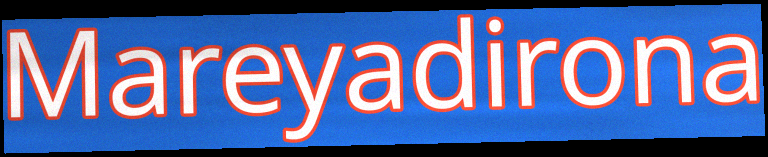
Mareyadirona